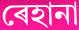
ৰেহানা